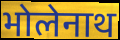
भोलेनाथ